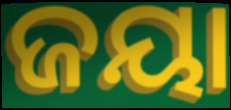
ଜୟା